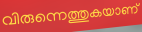
വിരുന്നെത്തുകയാണ്